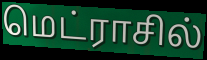
மெட்ராசில்